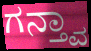
ಗನ್ತ್ವಾ